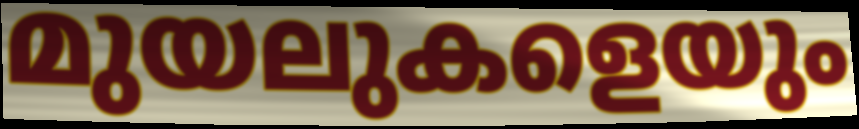
മുയലുകളെയും